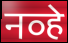
नव्हे